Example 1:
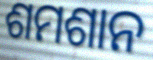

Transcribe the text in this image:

ଶମଶାନ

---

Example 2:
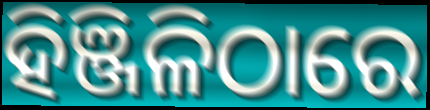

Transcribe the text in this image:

ହିଞ୍ଜିଳିଠାରେ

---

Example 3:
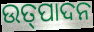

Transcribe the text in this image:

ଉତ୍‍ପାଦନ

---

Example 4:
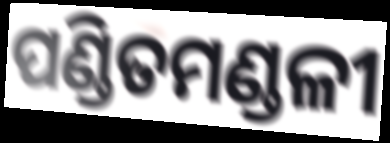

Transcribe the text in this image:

ପଣ୍ଡିତମଣ୍ଡଳୀ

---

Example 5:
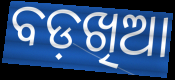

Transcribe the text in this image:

ବଡ଼ଖିଆ